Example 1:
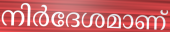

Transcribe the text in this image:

നിർദേശമാണ്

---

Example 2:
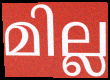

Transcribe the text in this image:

മില്ല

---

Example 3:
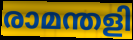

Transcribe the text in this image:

രാമന്തളി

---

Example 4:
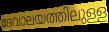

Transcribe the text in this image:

ദേവാലയത്തിലുള്ള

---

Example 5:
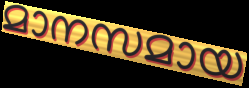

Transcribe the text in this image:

മാനസമായ